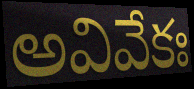
అవివేకః